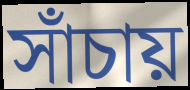
সাঁচায়